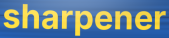
sharpener